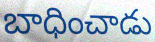
బాధించాడు